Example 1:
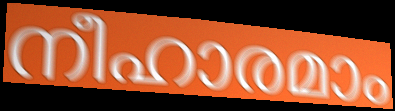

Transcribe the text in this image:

നീഹാരമാം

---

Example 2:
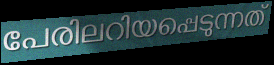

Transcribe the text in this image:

പേരിലറിയപ്പെടുന്നത്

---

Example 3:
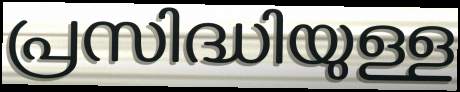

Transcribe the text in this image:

പ്രസിദ്ധിയുള്ള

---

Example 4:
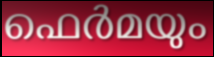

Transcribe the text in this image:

ഫെർമയും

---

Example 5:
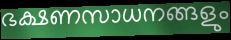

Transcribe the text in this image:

ഭക്ഷണസാധനങ്ങളും